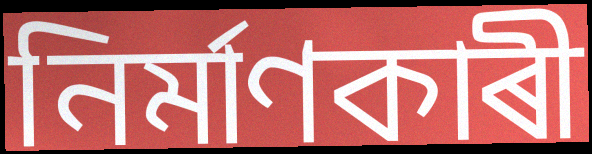
নিৰ্মাণকাৰী